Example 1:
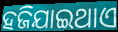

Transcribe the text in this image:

ହଜିଯାଇଥାଏ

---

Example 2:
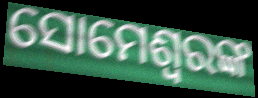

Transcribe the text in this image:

ସୋମେଶ୍ୱରଙ୍କ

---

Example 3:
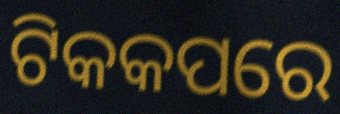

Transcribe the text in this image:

ଟିକକପରେ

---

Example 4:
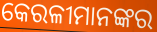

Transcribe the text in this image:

କେରଳୀମାନଙ୍କର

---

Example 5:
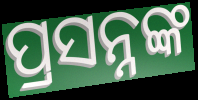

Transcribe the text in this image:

ପ୍ରସନ୍ନଙ୍କ